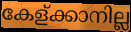
കേള്ക്കാനില്ല